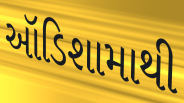
ઑડિશામાથી